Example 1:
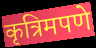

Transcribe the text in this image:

कृत्रिमपणे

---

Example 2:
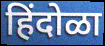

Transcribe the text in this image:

हिंदोळा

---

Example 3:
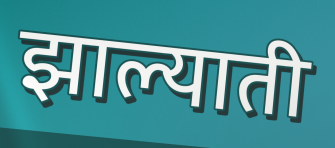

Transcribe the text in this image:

झाल्याती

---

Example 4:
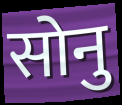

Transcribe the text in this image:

सोनु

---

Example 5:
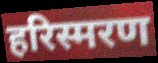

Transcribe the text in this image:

हरिस्मरण